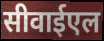
सीवाईएल